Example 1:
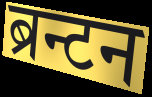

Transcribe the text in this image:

ब्रन्टन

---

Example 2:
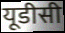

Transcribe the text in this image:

यूडीसी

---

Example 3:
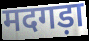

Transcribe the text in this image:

मदगड़ा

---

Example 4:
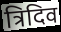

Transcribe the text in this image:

त्रिदिव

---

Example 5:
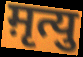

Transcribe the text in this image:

म़ृत्यु